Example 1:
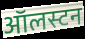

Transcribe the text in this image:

ऑलस्टन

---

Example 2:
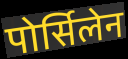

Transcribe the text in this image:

पोर्सिलेन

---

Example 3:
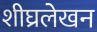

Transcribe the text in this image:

शीघ्रलेखन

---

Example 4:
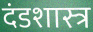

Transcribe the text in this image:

दंडशास्त्र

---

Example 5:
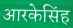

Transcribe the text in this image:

आरकेसिंह